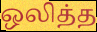
ஒலித்த